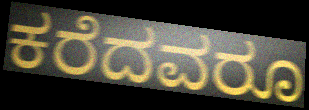
ಕರೆದವರೂ